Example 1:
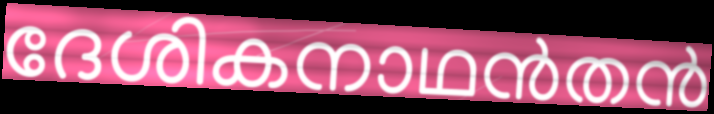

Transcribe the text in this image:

ദേശികനാഥൻതൻ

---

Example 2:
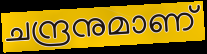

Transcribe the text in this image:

ചന്ദ്രനുമാണ്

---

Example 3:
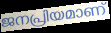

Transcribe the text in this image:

ജനപ്രിയമാണ്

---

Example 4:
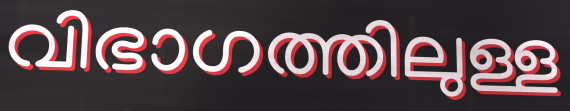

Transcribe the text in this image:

വിഭാഗത്തിലുള്ള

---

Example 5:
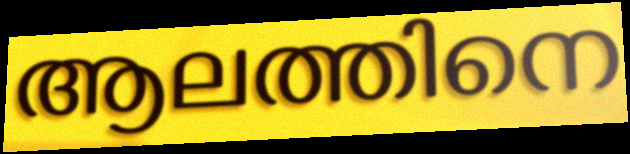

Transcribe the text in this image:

ആലത്തിനെ